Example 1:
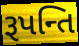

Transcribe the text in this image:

રૂપન્તિ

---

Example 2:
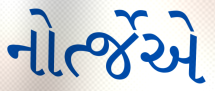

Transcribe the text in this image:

નોર્ત્જેએ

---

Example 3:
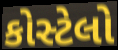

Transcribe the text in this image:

કોસ્ટેલો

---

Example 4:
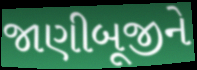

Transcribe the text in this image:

જાણીબૂજીને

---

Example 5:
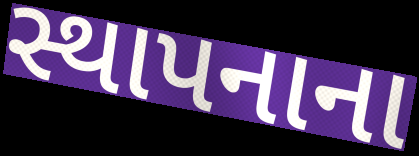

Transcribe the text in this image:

સ્થાપનાના